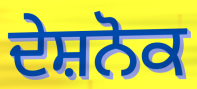
ਦੇਸ਼ਨੋਕ